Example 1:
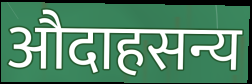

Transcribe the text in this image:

औदाहसन्य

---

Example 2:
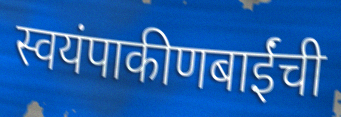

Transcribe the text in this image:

स्वयंपाकीणबाईंची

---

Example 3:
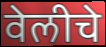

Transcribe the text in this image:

वेलीचे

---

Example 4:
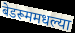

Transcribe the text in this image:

बेडरूममधल्या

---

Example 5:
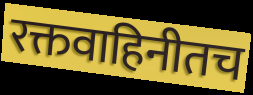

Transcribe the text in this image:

रक्तवाहिनीतच